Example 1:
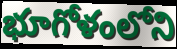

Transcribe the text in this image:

భూగోళంలోని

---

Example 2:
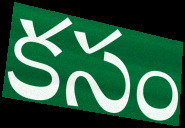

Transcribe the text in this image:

కసం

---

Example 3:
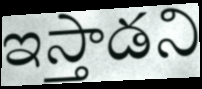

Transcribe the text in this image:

ఇస్తాడని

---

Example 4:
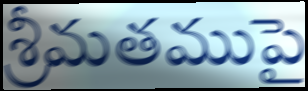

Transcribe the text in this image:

శ్రీమతముపై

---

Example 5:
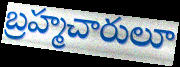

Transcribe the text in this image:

బ్రహ్మచారులూ